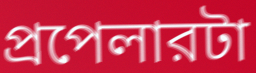
প্রপেলারটা